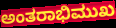
ಅಂತರಾಭಿಮುಖ